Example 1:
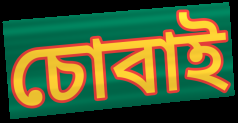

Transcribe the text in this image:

চোবাই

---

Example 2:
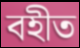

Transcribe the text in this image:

বহীত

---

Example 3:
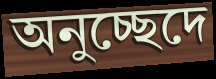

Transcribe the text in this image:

অনুচ্ছেদে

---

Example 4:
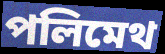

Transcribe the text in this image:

পলিমেথ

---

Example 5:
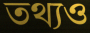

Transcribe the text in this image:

তথ্যও